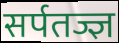
सर्पतज्ज्ञ